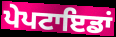
ਪੇਪਟਾਇਡਾਂ